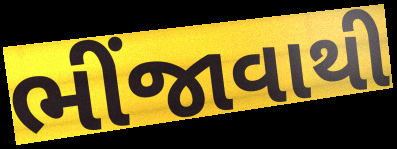
ભીંજાવાથી